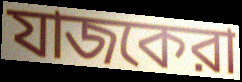
যাজকেরা